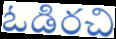
ఓడిరచి